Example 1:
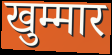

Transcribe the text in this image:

खुम्मार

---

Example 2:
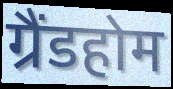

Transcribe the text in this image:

ग्रैंडहोम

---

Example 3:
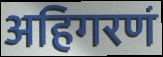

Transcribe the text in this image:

अहिगरणं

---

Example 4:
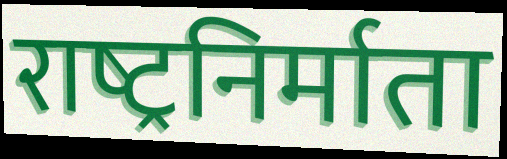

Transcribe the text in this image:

राष्ट्रनिर्माता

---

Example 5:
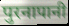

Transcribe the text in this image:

पुरनापानी